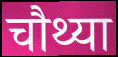
चौथ्या